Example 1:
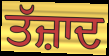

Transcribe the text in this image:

ਤੱਜ਼ਾਦ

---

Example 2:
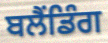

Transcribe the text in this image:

ਬਲੈਂਡਿੰਗ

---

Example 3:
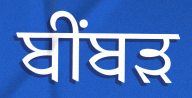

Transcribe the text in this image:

ਬੀਂਬੜ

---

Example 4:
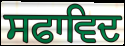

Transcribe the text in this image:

ਸਫਾਵਿਦ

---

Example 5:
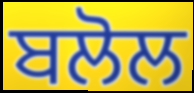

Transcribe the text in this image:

ਬਲੋਲ